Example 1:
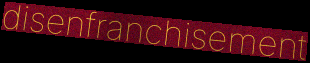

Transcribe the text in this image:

disenfranchisement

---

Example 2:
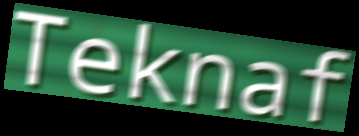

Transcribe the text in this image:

Teknaf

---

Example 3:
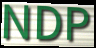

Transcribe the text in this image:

NDP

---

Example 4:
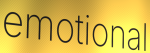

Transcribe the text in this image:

emotional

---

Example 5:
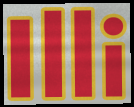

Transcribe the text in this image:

Illi